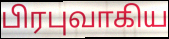
பிரபுவாகிய